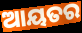
ଆୟତର